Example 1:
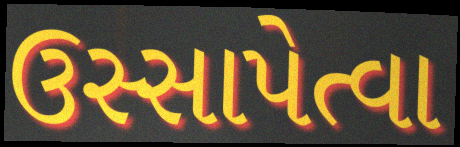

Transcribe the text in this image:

ઉસ્સાપેત્વા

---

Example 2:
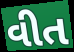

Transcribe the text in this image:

વીત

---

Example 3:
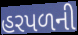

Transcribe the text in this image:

હરપળની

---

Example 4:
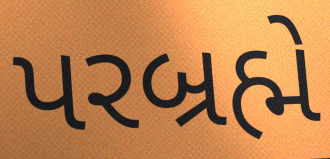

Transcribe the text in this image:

પરબ્રહ્મે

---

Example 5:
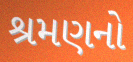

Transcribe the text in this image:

શ્રમણનો